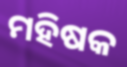
ମହିଷକ